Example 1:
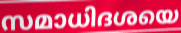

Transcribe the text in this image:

സമാധിദശയെ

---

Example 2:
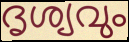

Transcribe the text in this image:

ദൃശ്യവും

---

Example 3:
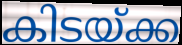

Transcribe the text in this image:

കിടയ്ക്ക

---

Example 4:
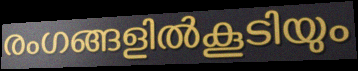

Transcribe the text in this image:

രംഗങ്ങളിൽകൂടിയും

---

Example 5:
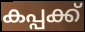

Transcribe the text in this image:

കപ്പക്ക്